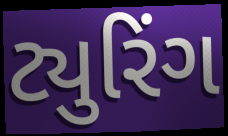
ટ્યુરિંગ